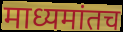
माध्यमांतच